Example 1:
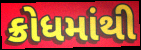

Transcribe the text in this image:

ક્રોધમાંથી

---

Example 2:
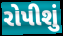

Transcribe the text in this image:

રોપીશું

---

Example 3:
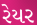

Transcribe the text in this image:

રેયર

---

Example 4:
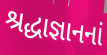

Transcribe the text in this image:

શ્રદ્ધાજ્ઞાનનાં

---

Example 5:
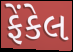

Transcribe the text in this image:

ફેંકેલ